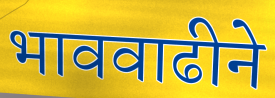
भाववाढीने